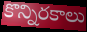
కొన్నిరకాలు